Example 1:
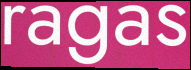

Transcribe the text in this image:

ragas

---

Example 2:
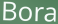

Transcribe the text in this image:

Bora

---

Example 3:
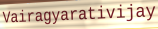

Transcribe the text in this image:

Vairagyarativijay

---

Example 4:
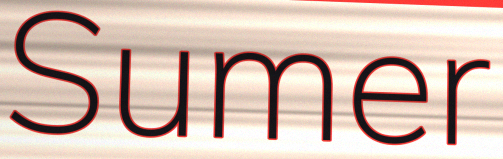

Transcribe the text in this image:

Sumer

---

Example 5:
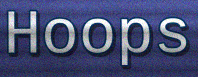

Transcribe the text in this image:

Hoops